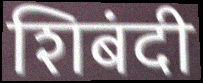
शिबंदी